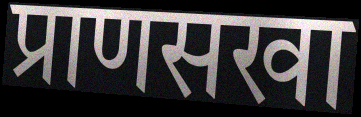
प्राणसखा